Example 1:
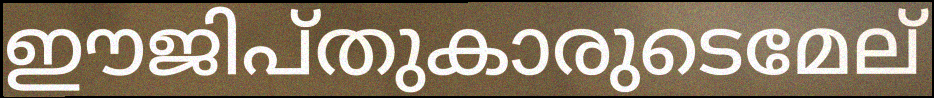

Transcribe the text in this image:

ഈജിപ്തുകാരുടെമേല്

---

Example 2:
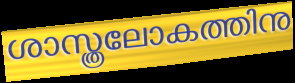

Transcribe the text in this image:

ശാസ്ത്രലോകത്തിനു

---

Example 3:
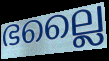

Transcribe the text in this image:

ഭല്ലൈ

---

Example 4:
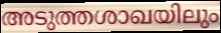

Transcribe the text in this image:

അടുത്തശാഖയിലും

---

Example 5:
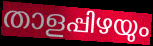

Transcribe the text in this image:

താളപ്പിഴയും